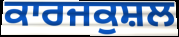
ਕਾਰਜਕੁਸ਼ਲ